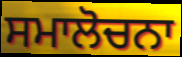
ਸਮਾਲੋਚਨਾ